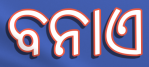
ବନାଏ